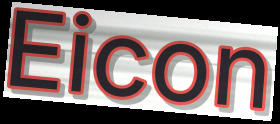
Eicon